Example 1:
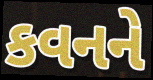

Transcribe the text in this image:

કવનને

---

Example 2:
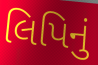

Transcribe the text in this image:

લિપિનું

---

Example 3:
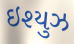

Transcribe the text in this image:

ઇશ્યુઝ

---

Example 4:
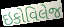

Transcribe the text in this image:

ઇકોવિલેજ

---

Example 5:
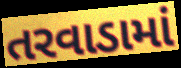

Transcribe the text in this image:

તરવાડામાં